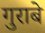
गुराबे